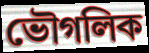
ভৌগলিক